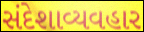
સંદેશાવ્યવહાર